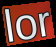
lor